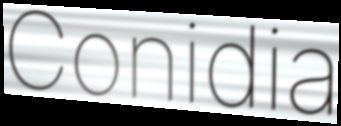
Conidia